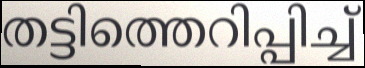
തട്ടിത്തെറിപ്പിച്ച്